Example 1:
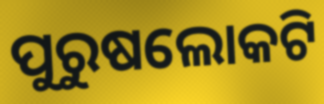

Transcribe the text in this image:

ପୁରୁଷଲୋକଟି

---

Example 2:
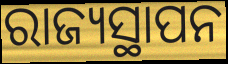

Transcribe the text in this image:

ରାଜ୍ୟସ୍ଥାପନ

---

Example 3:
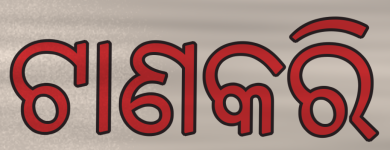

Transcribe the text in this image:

ଟାଣକରି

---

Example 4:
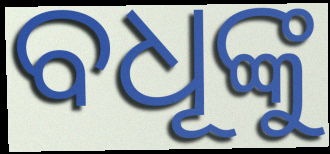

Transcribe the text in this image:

ବଧୂଙ୍କୁ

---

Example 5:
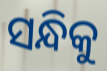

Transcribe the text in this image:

ସନ୍ଧିକୁ